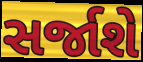
સર્જાશે